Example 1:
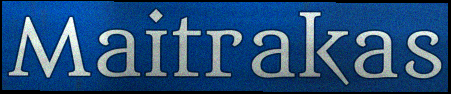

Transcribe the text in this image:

Maitrakas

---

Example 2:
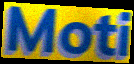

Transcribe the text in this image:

Moti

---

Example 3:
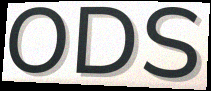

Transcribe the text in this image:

ODS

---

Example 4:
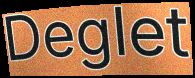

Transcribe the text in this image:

Deglet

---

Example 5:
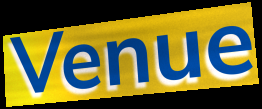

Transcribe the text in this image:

Venue